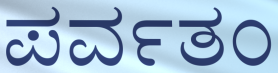
ಪರ್ವತಂ